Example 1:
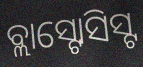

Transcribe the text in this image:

ବ୍ଲାସ୍ଟୋସିସ୍ଟ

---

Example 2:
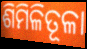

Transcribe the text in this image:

ଶିମିଳିତୂଳା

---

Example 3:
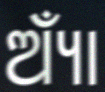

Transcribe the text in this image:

ଅ୍ୟାଁ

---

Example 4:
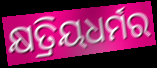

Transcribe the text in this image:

କ୍ଷତ୍ରିୟଧର୍ମର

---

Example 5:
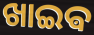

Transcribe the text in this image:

ଖାଇଵ